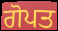
ਗੋਪਤ